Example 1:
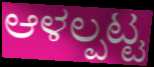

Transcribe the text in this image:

ಆಳಲ್ಪಟ್ಟ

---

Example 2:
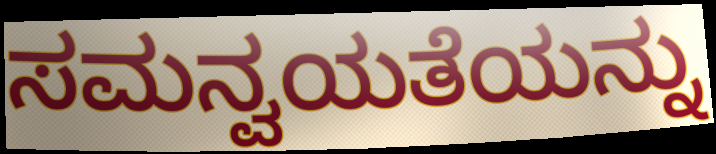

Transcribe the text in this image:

ಸಮನ್ವಯತೆಯನ್ನು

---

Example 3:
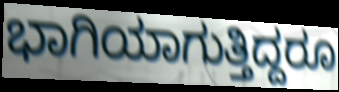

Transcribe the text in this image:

ಭಾಗಿಯಾಗುತ್ತಿದ್ದರೂ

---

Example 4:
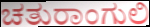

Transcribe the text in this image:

ಚತುರಾಂಗುಲಿ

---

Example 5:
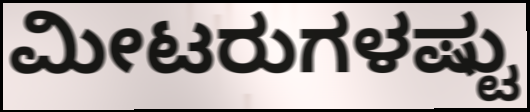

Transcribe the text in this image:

ಮೀಟರುಗಳಷ್ಟು